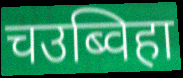
चउब्विहा